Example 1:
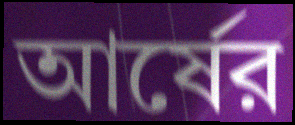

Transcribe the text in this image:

আর্ষের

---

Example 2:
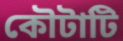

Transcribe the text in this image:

কৌটাটি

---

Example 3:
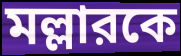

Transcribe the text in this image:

মল্লারকে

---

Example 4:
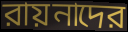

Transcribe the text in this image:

রায়নাদের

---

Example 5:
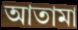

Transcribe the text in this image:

আতামা